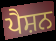
ਪੈਸ਼ਨ